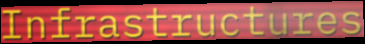
Infrastructures